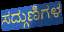
ಸದ್ಗುಣಿಗಳ